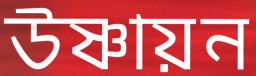
উষ্ণায়ন